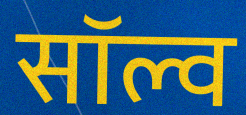
सॉल्व